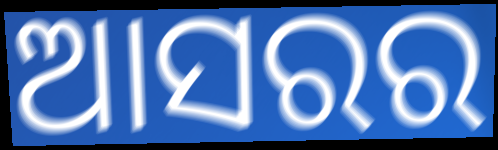
ଆସରର